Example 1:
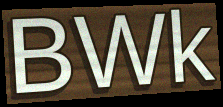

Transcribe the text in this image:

BWk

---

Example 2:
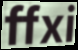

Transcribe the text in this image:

ffxi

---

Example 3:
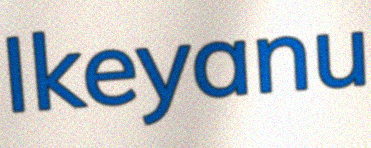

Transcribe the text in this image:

Ikeyanu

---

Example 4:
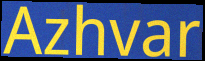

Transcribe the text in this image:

Azhvar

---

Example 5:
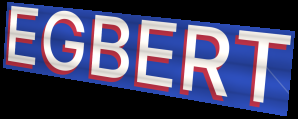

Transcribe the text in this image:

EGBERT